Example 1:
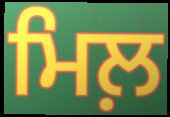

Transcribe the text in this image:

ਮਿਲ਼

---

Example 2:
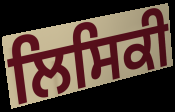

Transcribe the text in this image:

ਲਿਸਿਕੀ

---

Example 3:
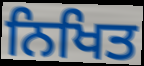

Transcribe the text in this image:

ਨਿਖਿਤ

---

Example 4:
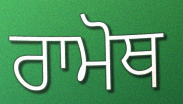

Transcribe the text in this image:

ਰਾਮੋਥ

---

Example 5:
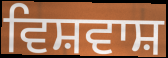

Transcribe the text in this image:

ਵਿਸ਼ਵਾਸ਼